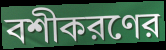
বশীকরণের